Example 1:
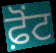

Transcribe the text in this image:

ਫ਼ੋਂਟ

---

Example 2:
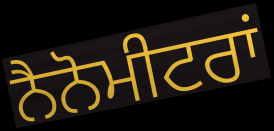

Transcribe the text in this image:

ਨੈਨੋਮੀਟਰਾਂ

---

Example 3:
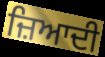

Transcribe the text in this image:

ਜ਼ਿਆਦੀ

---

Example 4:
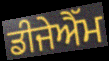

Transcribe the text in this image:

ਡੀਜੇਐੱਮ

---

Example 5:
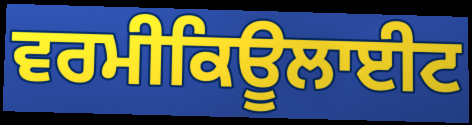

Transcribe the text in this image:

ਵਰਮੀਕਿਊਲਾਈਟ